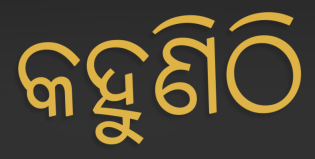
କହୁଣିଠି